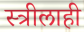
स्त्रीलाही